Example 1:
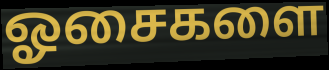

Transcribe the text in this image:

ஓசைகளை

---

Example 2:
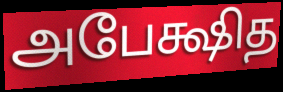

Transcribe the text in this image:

அபேக்ஷித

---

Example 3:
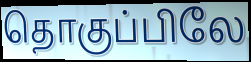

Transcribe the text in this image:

தொகுப்பிலே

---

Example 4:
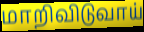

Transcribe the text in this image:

மாறிவிடுவாய்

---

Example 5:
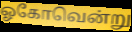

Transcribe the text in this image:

ஓகோவென்று